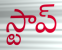
స్టాప్